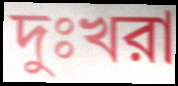
দুঃখরা